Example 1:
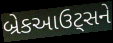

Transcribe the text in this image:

બ્રેકઆઉટ્સને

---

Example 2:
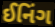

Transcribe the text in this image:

ઈનિંગ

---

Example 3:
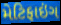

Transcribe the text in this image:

મેટિફાઇંગ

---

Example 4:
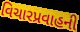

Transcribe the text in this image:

વિચારપ્રવાહની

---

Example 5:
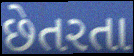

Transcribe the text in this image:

છેતરતા